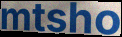
mtsho